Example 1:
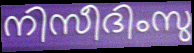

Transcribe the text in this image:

നിസീദിംസു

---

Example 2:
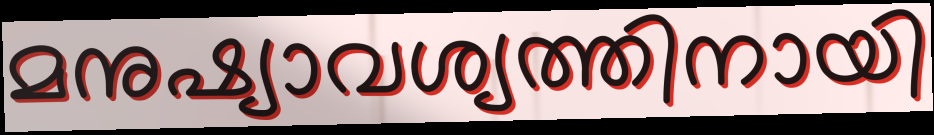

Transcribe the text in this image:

മനുഷ്യാവശ്യത്തിനായി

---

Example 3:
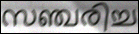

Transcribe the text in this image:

സഞ്ചരിച്ച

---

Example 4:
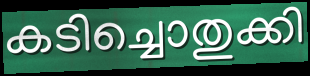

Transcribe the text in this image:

കടിച്ചൊതുക്കി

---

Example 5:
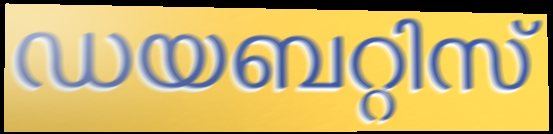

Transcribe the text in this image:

ഡയബറ്റിസ്